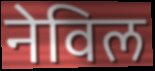
नेविल